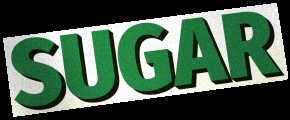
SUGAR